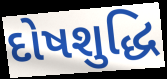
દોષશુદ્ધિ